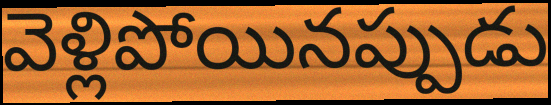
వెళ్లిపోయినప్పుడు